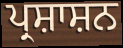
ਪ੍ਰਸ਼ਾਸ਼ਨ